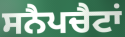
ਸਨੈਪਚੈਟਾਂ